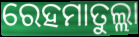
ରେହମାତୁଲ୍ଲା